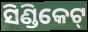
ସିଣ୍ଡିକେଟ୍